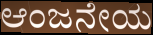
ಆಂಜನೇಯ